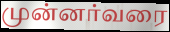
முன்னர்வரை